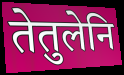
तेतुलेनि